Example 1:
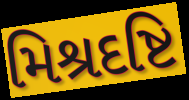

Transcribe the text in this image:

મિશ્રદષ્ટિ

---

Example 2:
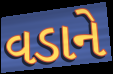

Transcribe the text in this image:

વડાને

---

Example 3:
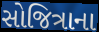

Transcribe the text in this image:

સોજિત્રાના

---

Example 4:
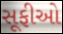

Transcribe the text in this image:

સૂફીઓ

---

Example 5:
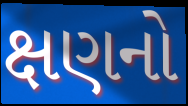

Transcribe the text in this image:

ક્ષણનો